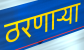
ठरणाऱ्या